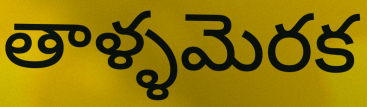
తాళ్ళమెరక